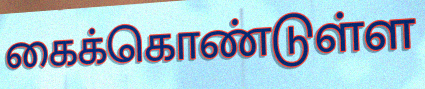
கைக்கொண்டுள்ள